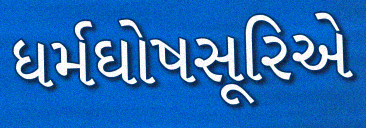
ધર્મઘોષસૂરિએ